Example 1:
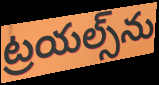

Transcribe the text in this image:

ట్రయల్స్‌ను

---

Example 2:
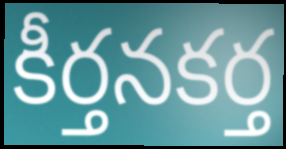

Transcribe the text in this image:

కీర్తనకర్త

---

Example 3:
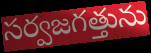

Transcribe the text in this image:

సర్వజగత్తును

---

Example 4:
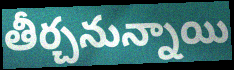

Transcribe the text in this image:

తీర్చనున్నాయి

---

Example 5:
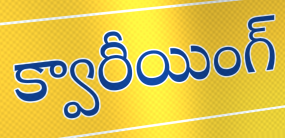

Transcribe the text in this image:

క్వారీయింగ్